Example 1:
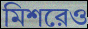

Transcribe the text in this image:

মিশরেও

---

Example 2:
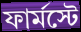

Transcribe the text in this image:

ফার্মস্টে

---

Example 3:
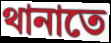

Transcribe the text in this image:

থানাতে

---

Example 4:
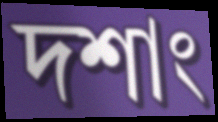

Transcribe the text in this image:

দশাং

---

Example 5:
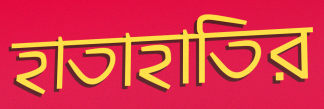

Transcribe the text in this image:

হাতাহাতির